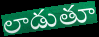
లాడుతూ